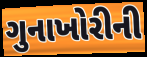
ગુનાખોરીની